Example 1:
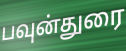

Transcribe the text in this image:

பவுன்துரை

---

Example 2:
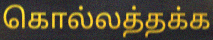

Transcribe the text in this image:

கொல்லத்தக்க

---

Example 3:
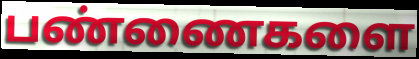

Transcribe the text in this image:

பண்ணைகளை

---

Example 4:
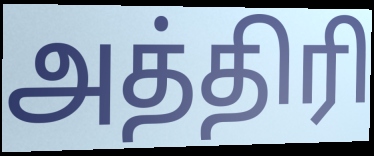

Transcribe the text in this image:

அத்திரி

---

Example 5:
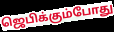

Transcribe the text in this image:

ஜெபிக்கும்போது